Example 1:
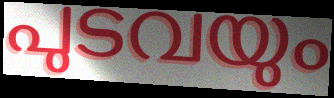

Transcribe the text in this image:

പുടവയും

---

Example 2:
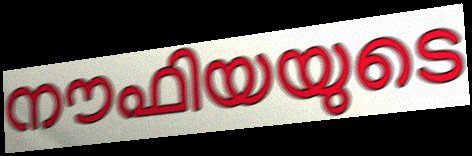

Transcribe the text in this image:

നൗഫിയയുടെ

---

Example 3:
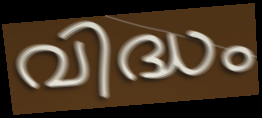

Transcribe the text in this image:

വിദ്ധം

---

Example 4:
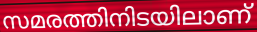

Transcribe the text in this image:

സമരത്തിനിടയിലാണ്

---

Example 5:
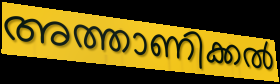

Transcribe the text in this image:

അത്താണിക്കൽ